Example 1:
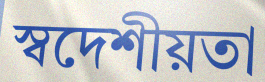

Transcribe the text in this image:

স্বদেশীয়তা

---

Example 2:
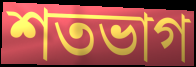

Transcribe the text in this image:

শতভাগ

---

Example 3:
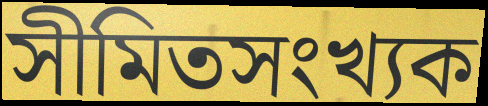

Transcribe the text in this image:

সীমিতসংখ্যক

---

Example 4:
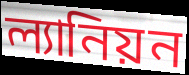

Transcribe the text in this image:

ল্যানিয়ন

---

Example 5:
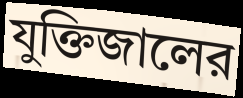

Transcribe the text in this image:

যুক্তিজালের